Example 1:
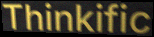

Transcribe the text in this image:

Thinkific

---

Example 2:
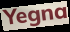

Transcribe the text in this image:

Yegna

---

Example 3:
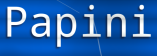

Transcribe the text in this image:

Papini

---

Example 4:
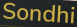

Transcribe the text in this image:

Sondhi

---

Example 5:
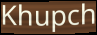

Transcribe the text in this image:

Khupch